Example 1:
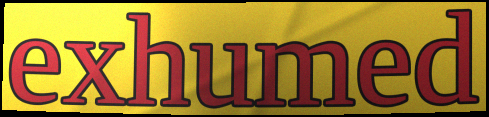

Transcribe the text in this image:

exhumed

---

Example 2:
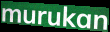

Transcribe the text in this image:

murukan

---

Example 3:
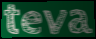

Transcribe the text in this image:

teva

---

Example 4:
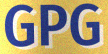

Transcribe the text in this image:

GPG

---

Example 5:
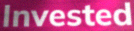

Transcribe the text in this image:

Invested